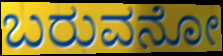
ಬರುವನೋ